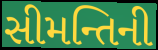
સીમન્તિની